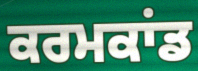
ਕਰਮਕਾਂਡ